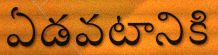
ఏడవటానికి